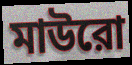
মাউরো